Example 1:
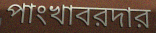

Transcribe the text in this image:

পাংখাবরদার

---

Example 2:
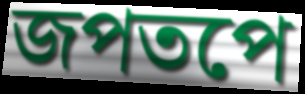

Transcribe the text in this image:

জপতপে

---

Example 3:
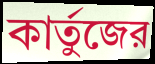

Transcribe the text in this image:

কার্তুজের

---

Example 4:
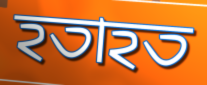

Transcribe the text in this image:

হতাহত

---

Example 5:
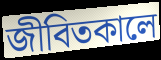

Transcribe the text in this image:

জীবিতকালে